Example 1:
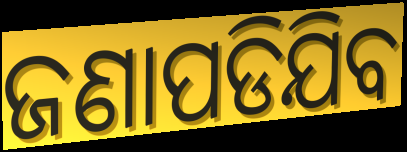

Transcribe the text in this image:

ଜଣାପଡିଯିବ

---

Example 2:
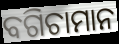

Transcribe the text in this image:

ବଗିଚାମାନ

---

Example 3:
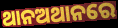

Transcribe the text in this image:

ଥାନଅଥାନରେ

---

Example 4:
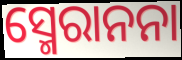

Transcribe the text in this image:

ସ୍ମେରାନନା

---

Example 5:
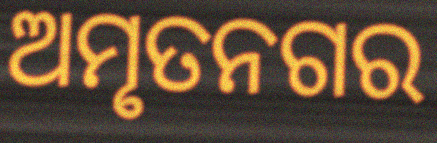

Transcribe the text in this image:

ଅମୃତନଗର